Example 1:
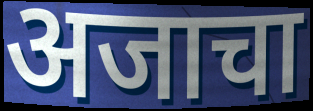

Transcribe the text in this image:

अजाचा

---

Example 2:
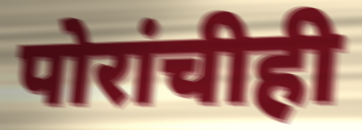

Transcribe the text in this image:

पोरांचीही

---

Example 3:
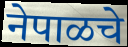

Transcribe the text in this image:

नेपाळचे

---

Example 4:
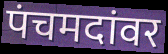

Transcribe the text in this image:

पंचमदांवर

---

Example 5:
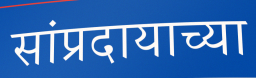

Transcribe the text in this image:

सांप्रदायाच्या